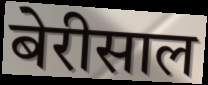
बेरीसाल